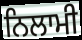
ਨਿਲਾਮੀ